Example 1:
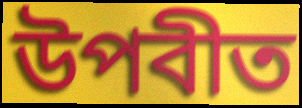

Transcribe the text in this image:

উপবীত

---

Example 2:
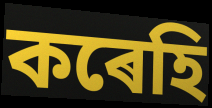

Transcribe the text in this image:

কৰেহি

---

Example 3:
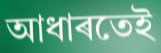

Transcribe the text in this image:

আধাৰতেই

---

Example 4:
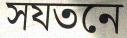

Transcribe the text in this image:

সযতনে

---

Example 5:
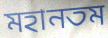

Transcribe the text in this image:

মহানতম